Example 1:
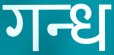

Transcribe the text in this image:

गन्‍ध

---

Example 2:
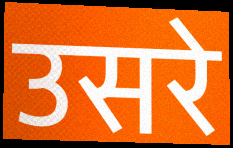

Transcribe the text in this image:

उसरे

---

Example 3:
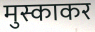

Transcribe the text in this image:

मुस्काकर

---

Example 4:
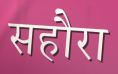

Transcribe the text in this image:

सहौरा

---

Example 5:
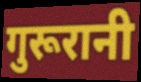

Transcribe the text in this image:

गुरूरानी